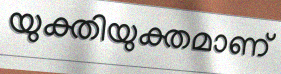
യുക്തിയുക്തമാണ്